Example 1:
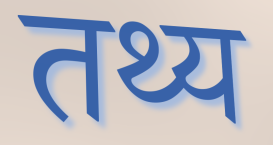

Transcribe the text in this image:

तथ्य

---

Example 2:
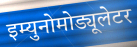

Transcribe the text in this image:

इम्युनोमोड्यूलेटर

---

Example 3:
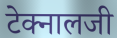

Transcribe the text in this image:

टेक्नालजी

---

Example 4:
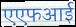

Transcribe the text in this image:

एएफआई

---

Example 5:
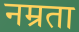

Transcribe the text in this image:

नम्रता